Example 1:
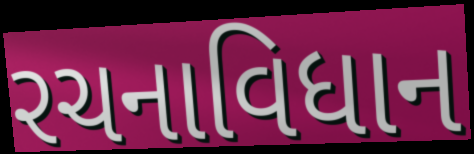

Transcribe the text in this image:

રચનાવિધાન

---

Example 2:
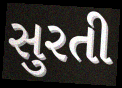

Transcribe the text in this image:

સુરતી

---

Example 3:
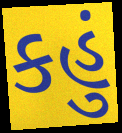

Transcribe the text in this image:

કહું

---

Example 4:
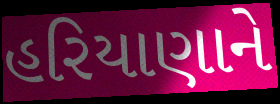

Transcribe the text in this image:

હરિયાણાને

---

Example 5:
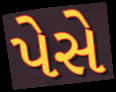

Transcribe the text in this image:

પેસે